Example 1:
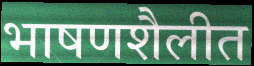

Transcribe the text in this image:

भाषणशैलीत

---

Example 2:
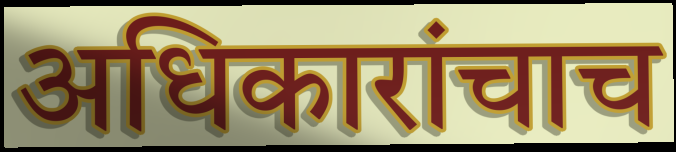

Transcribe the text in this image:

अधिकारांचाच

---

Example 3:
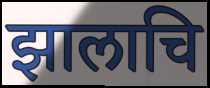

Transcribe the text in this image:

झालाचि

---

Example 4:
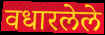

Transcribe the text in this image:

वधारलेले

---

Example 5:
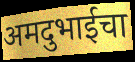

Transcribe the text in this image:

अमदुभाईचा